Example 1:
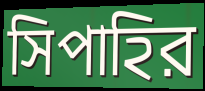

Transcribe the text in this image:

সিপাহির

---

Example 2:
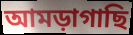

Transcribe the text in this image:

আমড়াগাছি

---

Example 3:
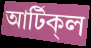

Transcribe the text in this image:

আর্টিক্‌ল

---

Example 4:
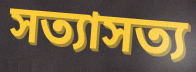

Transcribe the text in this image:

সত্যাসত্য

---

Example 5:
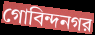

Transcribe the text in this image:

গোবিন্দনগর